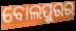
ବୋଲପୁରର